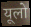
यूलो